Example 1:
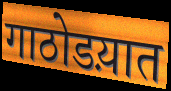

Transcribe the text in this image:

गाठोडय़ात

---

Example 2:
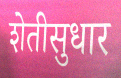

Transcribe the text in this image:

शेतीसुधार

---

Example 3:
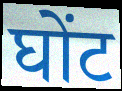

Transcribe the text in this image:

घोंट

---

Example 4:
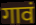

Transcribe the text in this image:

गावं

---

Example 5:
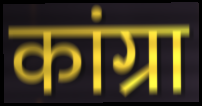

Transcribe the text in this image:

कांग्रा